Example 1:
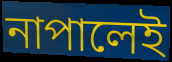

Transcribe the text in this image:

নাপালেই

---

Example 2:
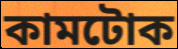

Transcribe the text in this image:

কামটোক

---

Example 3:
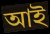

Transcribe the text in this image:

আই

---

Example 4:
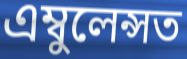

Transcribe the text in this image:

এম্বুলেন্সত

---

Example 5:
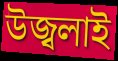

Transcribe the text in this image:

উজ্বলাই